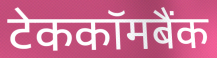
टेककॉमबैंक